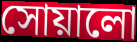
সোয়ালো